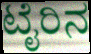
ಟೈರಿನ